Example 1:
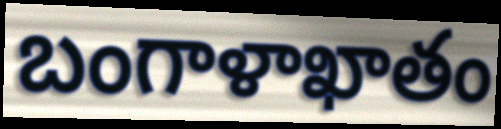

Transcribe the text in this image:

బంగాళాఖాతం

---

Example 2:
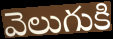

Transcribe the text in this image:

వెలుగుకి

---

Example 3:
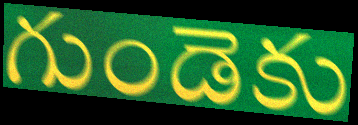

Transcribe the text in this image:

గుండెకు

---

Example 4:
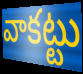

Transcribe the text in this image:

వాకట్టు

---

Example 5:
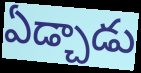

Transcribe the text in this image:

ఏడ్చాడు